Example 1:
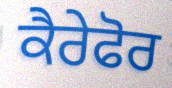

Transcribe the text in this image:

ਕੈਰੇਫੋਰ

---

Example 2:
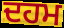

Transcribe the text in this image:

ਦਹਮ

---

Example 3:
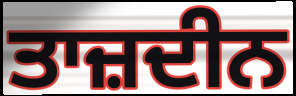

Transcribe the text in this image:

ਤਾਜ਼ਦੀਨ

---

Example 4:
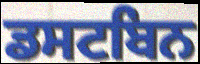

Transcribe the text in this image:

ਡਸਟਬਿਨ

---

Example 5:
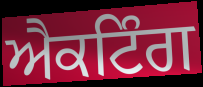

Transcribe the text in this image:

ਐਕਟਿੰਗ